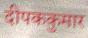
दीपककुमार